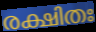
രക്ഷിതഃ